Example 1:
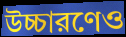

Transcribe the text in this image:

উচ্চারণেও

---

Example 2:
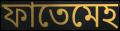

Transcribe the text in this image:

ফাতেমেহ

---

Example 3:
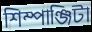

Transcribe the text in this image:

শিম্পাঞ্জিটা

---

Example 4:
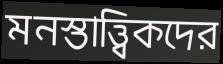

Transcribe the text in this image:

মনস্তাত্ত্বিকদের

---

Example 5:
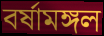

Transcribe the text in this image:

বর্ষামঙ্গল